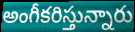
అంగీకరిస్తున్నారు